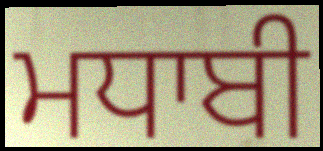
ਮਧਾਬੀ